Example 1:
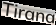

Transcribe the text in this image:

Tirana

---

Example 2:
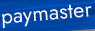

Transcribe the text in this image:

paymaster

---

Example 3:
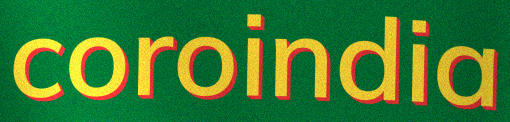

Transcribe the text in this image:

coroindia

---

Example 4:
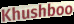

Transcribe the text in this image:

Khushboo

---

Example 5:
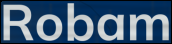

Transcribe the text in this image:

Robam